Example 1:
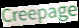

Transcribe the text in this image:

Creepage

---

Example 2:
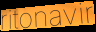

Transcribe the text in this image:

ritonavir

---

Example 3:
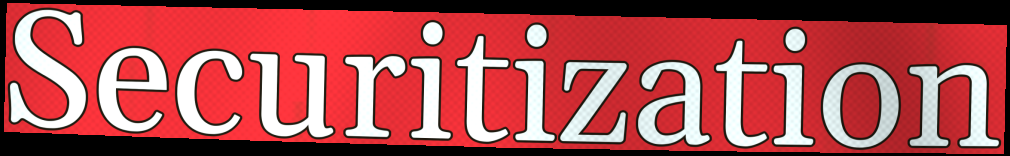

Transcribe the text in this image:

Securitization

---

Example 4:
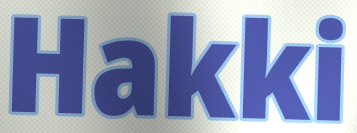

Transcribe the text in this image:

Hakki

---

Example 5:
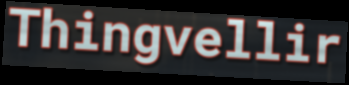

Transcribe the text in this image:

Thingvellir